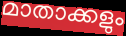
മാതാക്കളും